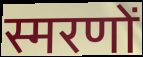
स्मरणों